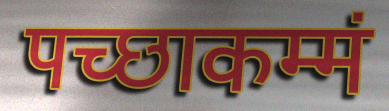
पच्छाकम्मं